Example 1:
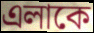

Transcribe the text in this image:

এলাকে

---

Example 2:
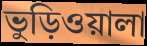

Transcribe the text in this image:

ভুড়িওয়ালা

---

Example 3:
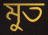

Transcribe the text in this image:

মুত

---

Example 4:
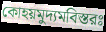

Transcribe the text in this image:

কোহয়মুদ্যমবিস্তরঃ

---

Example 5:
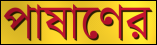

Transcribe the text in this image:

পাষাণের